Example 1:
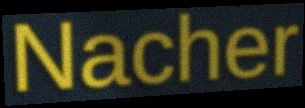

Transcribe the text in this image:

Nacher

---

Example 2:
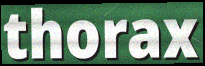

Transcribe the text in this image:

thorax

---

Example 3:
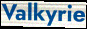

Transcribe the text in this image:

Valkyrie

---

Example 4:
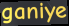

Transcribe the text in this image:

ganiye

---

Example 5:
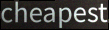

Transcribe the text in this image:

cheapest